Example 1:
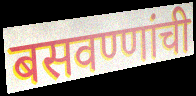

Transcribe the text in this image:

बसवण्णांची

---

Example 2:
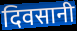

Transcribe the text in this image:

दिवसानी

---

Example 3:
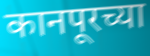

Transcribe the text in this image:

कानपूरच्या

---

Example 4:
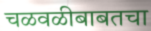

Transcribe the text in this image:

चळवळीबाबतचा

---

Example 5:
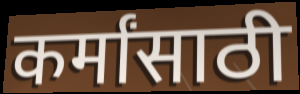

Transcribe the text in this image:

कर्मांसाठी